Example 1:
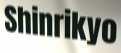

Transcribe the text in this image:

Shinrikyo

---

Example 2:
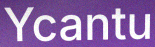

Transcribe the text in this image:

Ycantu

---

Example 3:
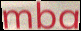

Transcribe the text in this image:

mba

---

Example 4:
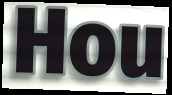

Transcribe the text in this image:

Hou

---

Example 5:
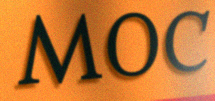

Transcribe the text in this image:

MOC